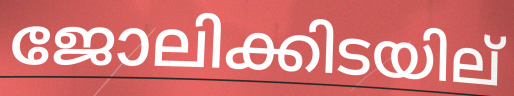
ജോലിക്കിടയില്